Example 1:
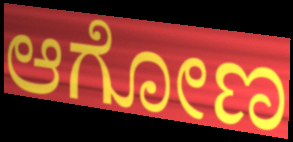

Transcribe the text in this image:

ಆಗೋಣ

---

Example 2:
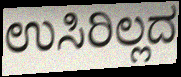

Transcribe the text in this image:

ಉಸಿರಿಲ್ಲದ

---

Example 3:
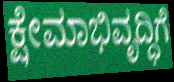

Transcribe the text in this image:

ಕ್ಷೇಮಾಭಿವೃದ್ಧಿಗೆ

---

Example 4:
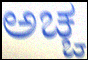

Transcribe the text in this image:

ಅಚ್ಚ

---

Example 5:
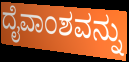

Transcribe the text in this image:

ದೈವಾಂಶವನ್ನು